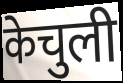
केचुली